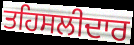
ਤਹਿਸਲੀਦਾਰ